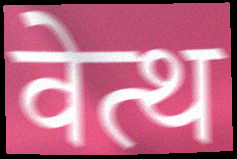
वेत्थ